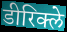
डीरिक्ले